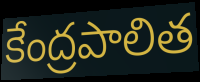
కేంద్రపాలిత